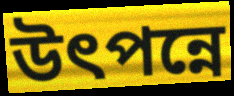
উৎপন্নে